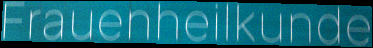
Frauenheilkunde